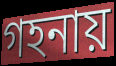
গহনায়